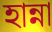
হান্না